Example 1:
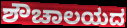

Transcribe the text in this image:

ಶೌಚಾಲಯದ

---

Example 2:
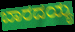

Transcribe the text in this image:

ಬಾರದಯ್ಯ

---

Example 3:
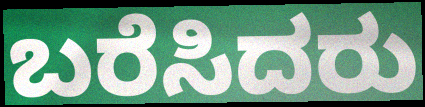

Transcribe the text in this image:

ಬರೆಸಿದರು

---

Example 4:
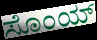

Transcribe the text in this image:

ಸೊಂಯ್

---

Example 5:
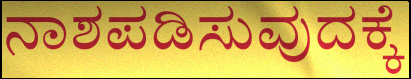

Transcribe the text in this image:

ನಾಶಪಡಿಸುವುದಕ್ಕೆ